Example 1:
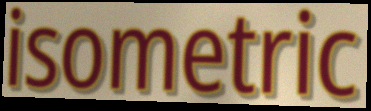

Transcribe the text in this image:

isometric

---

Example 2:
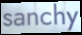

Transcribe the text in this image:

sanchy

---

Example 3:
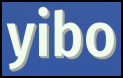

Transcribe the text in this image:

yibo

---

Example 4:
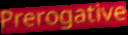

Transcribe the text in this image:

Prerogative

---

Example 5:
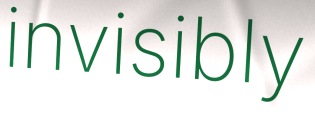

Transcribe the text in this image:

invisibly